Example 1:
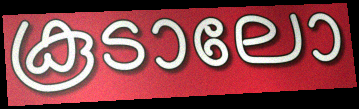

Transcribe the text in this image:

കൂടാലോ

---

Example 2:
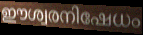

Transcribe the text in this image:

ഈശ്വരനിഷേധം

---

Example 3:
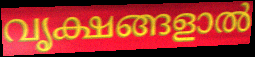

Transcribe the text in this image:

വൃക്ഷങ്ങളാൽ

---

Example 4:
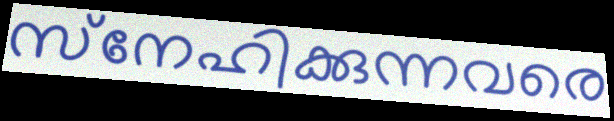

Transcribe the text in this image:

സ്‌നേഹിക്കുന്നവരെ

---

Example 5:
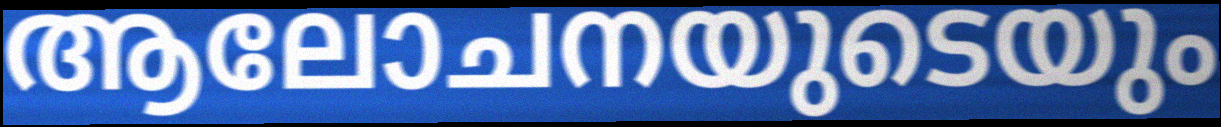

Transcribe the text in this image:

ആലോചനയുടെയും